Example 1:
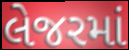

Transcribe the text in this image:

લેજરમાં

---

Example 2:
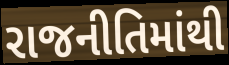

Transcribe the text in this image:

રાજનીતિમાંથી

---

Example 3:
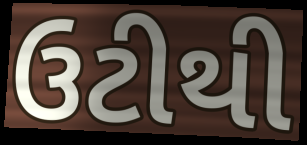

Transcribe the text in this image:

ઉટીથી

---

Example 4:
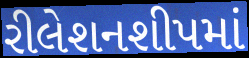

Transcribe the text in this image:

રીલેશનશીપમાં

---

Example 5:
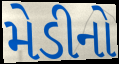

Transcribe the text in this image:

મેડીનો